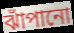
ঝাঁপানো